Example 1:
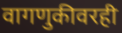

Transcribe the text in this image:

वागणुकीवरही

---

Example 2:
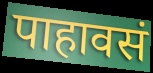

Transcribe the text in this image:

पाहावसं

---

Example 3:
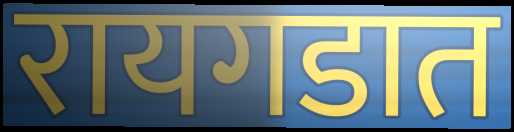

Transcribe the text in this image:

रायगडात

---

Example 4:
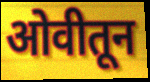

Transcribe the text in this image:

ओवीतून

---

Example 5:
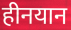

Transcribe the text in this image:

हीनयान